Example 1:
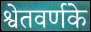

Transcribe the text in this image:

श्वेतवर्णके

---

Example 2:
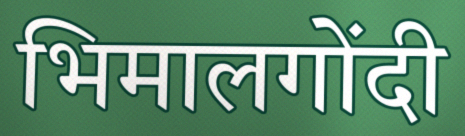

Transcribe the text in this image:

भिमालगोंदी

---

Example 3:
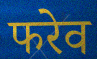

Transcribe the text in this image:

फरेव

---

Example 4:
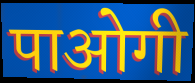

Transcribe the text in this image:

पाओगी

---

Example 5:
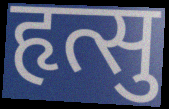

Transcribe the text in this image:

हृत्सु